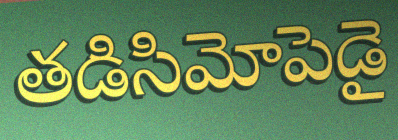
తడిసిమోపెడై